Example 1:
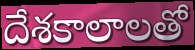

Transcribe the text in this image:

దేశకాలాలతో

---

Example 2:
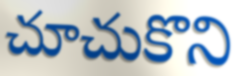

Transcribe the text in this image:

చూచుకొని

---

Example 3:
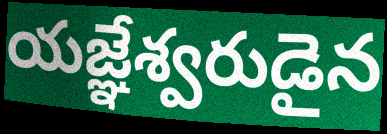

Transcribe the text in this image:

యజ్ఞేశ్వరుడైన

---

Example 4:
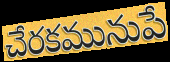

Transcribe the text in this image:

చేరకమునుపే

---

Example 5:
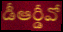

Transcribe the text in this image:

డీఆర్డీవో